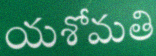
యశోమతి